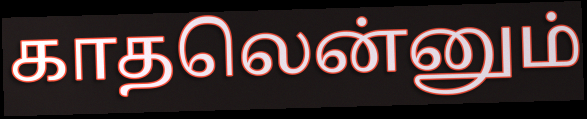
காதலென்னும்